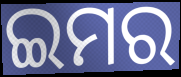
ଇମର